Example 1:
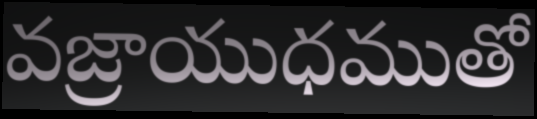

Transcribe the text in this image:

వజ్రాయుధముతో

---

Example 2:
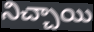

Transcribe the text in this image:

నిచ్చాయి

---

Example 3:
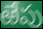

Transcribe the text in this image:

ఱేపు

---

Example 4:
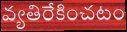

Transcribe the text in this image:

వ్యతిరేకించటం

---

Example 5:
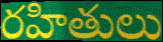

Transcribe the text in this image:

రహితులు